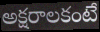
అక్షరాలకంటే